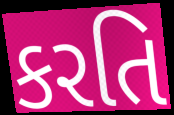
કરતિ